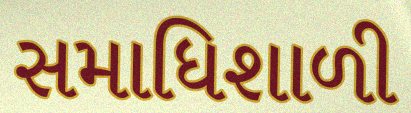
સમાધિશાળી